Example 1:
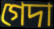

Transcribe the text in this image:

গেদা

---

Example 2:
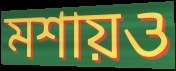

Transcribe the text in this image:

মশায়ও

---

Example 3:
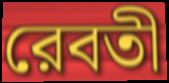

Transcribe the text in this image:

রেবতী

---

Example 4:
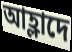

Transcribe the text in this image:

আহ্লাদে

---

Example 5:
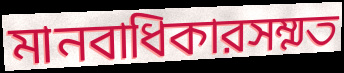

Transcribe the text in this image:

মানবাধিকারসম্মত